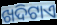
ଖଦିଟାଏ